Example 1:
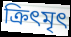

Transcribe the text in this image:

ক্রিৎমৃৎ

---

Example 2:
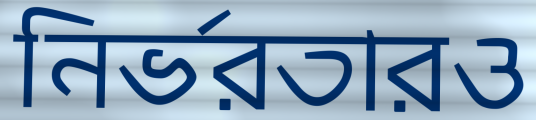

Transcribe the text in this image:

নির্ভরতারও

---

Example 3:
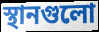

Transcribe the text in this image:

স্থানগুলো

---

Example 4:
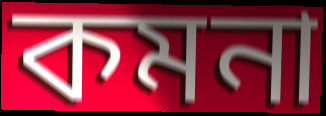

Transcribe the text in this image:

কমনা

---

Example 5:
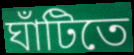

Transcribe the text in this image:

ঘাঁটিতে